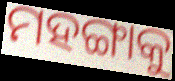
ମହଙ୍ଗାକୁ